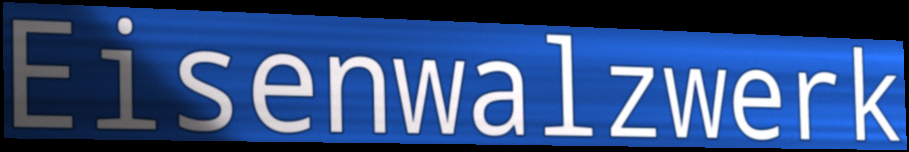
Eisenwalzwerk